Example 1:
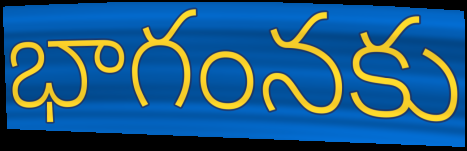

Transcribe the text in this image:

భాగంనకు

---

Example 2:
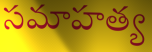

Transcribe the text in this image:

సమాహత్య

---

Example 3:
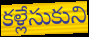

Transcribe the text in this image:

కళ్లేసుకుని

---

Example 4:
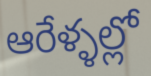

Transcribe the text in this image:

ఆరేళ్ళల్లో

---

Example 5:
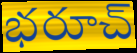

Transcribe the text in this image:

భరూచ్